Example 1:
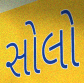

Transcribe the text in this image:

સોલો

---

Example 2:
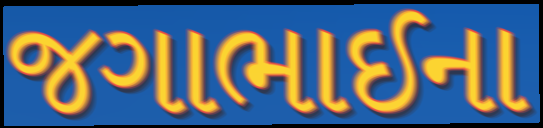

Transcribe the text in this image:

જગાભાઈના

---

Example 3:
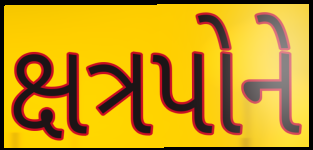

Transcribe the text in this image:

ક્ષત્રપોને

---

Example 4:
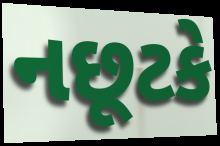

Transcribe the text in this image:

નછૂટકે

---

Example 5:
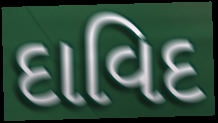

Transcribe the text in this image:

દાવિદ